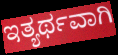
ಇತ್ಯರ್ಥವಾಗಿ